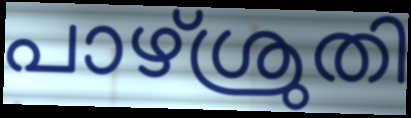
പാഴ്ശ്രുതി